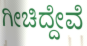
ಗೀಚಿದ್ದೇವೆ